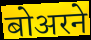
बोअरने